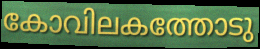
കോവിലകത്തോടു